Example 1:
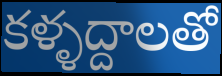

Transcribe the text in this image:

కళ్ళద్దాలతో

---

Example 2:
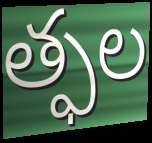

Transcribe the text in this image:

త్ఫల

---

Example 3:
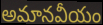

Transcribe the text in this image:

అమానవీయం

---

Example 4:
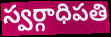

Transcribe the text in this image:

స్వర్గాధిపతి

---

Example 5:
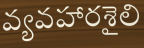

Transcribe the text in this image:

వ్యవహారశైలి